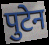
पुटेन